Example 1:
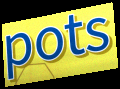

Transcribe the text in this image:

pots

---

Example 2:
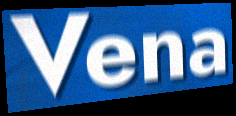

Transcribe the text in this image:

Vena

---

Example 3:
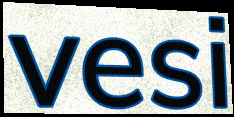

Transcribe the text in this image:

vesi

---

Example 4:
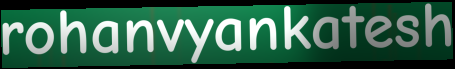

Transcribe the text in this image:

rohanvyankatesh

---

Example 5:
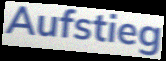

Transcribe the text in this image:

Aufstieg